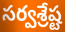
సర్వశ్రేష్ట